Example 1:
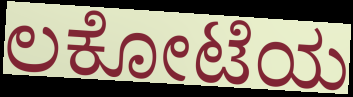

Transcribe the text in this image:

ಲಕೋಟೆಯ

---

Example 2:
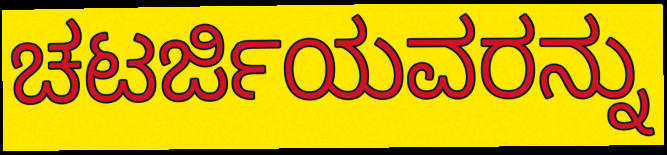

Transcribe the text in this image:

ಚಟರ್ಜಿಯವರನ್ನು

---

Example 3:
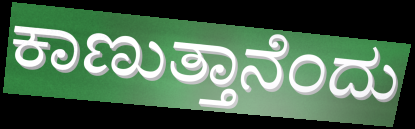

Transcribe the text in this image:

ಕಾಣುತ್ತಾನೆಂದು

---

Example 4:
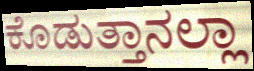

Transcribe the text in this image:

ಕೊಡುತ್ತಾನಲ್ಲಾ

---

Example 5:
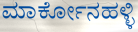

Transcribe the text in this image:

ಮಾರ್ಕೋನಹಳ್ಳಿ